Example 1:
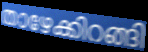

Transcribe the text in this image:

താഴേക്കിറങ്ങി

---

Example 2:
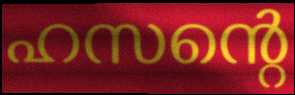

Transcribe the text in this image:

ഹസന്റെ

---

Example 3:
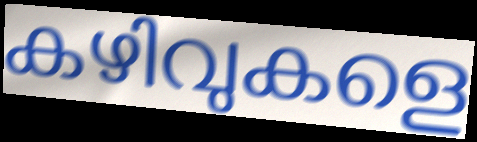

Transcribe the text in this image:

കഴിവുകളെ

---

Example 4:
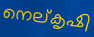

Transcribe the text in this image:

നെല്കൃഷി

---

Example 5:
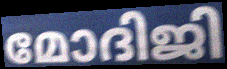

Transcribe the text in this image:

മോദിജി